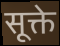
सूक्ते